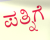
ಪತ್ನಿಗೆ